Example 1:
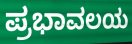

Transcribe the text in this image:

ಪ್ರಭಾವಲಯ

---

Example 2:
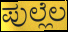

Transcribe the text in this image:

ಪುಲ್ಲೆಲ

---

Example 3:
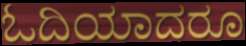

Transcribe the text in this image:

ಓದಿಯಾದರೂ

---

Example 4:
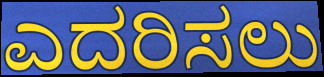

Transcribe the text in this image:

ಎದರಿಸಲು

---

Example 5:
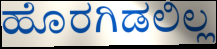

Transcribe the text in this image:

ಹೊರಗಿಡಲಿಲ್ಲ